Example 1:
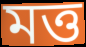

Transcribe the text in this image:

মত্ত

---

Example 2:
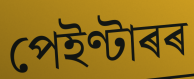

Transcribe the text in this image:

পেইণ্টাৰৰ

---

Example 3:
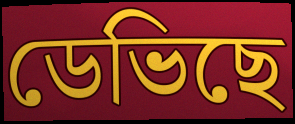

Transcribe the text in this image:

ডেভিছে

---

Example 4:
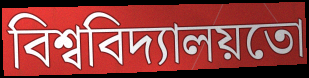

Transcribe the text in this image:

বিশ্ববিদ্যালয়তো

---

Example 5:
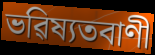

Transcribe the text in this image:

ভৱিষ্যতবাণী